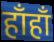
हाँहाँ